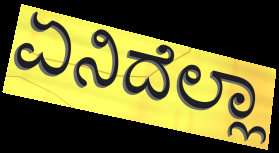
ಏನಿದೆಲ್ಲಾ